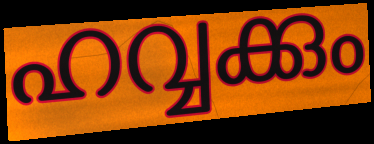
ഹവ്വക്കും